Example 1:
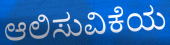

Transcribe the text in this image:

ಆಲಿಸುವಿಕೆಯ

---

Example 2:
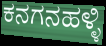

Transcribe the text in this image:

ಕನಗನಹಳ್ಳಿ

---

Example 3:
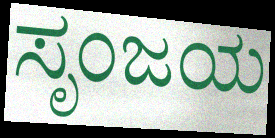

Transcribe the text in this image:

ಸೃಂಜಯ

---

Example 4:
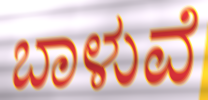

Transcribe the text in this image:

ಬಾಳುವೆ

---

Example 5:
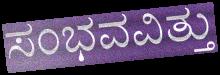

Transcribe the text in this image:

ಸಂಭವವಿತ್ತು